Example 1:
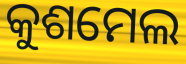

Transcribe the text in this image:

କୁଶମେଲ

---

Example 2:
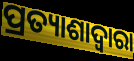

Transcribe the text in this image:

ପ୍ରତ୍ୟାଶାଦ୍ୱାରା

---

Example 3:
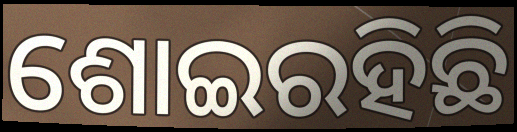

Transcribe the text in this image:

ଶୋଇରହିଛି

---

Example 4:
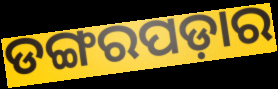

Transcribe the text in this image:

ଡଙ୍ଗରପଡ଼ାର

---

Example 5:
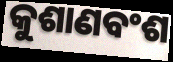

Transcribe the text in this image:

କୁଶାଣବଂଶ